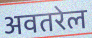
अवतरेल